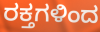
ರಕ್ತಗಳಿಂದ